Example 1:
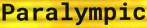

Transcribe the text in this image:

Paralympic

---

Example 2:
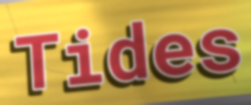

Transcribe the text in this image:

Tides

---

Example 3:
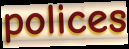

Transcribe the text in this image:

polices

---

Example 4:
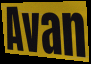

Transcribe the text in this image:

Avan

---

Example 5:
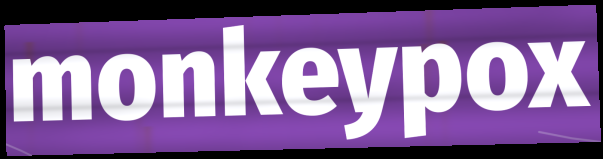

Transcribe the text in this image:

monkeypox